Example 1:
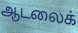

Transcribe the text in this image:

ஆடலைக்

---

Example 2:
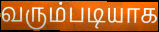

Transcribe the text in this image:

வரும்படியாக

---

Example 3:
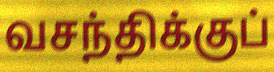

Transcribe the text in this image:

வசந்திக்குப்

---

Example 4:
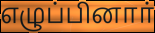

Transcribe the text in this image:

எழுப்பினார்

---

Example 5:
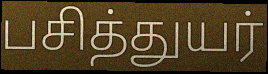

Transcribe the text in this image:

பசித்துயர்